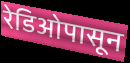
रेडिओपासून